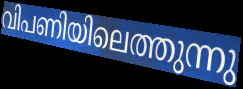
വിപണിയിലെത്തുന്നു